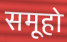
समूहो